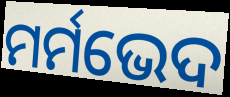
ମର୍ମଭେଦ